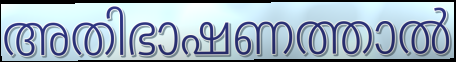
അതിഭാഷണത്താൽ